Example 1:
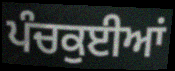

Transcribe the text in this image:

ਪੰਚਕੁਈਆਂ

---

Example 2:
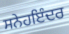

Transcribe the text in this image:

ਸਨੇਹਇੰਦਰ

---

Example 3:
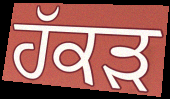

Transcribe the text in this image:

ਹੱਕੜ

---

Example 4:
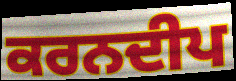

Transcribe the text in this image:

ਕਰਨਦੀਪ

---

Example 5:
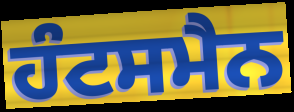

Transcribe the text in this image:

ਹੰਟਸਮੈਨ